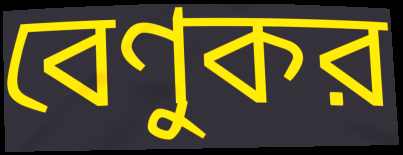
বেণুকর